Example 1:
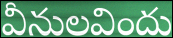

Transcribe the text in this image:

వీనులవిందు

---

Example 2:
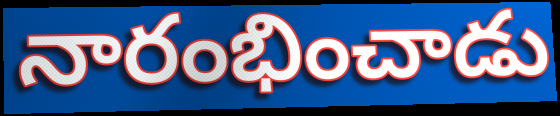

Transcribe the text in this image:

నారంభించాడు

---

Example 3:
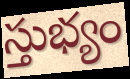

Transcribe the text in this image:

స్తుభ్యం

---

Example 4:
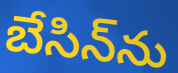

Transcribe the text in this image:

బేసిన్‌ను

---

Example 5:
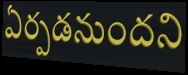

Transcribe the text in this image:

ఏర్పడనుందని